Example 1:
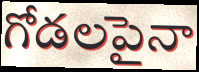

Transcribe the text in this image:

గోడలపైనా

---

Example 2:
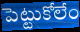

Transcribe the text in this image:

పెట్టుకోలేం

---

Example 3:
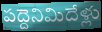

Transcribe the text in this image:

పద్దెనిమిదేళ్లు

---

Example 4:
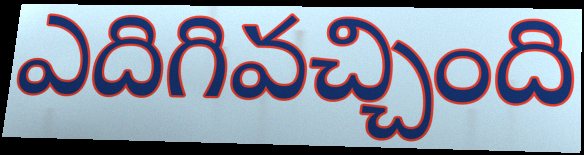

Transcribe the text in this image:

ఎదిగివచ్చింది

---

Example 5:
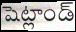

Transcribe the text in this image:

షెట్లాండ్